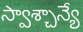
స్వాశ్చాన్యే